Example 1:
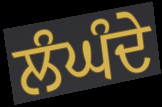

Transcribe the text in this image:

ਲੰਘੰਦੇ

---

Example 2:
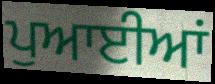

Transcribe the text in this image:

ਪੁਆਈਆਂ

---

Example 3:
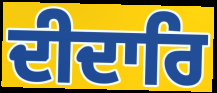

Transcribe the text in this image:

ਦੀਦਾਰਿ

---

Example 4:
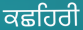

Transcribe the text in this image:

ਕਛਹਿਰੀ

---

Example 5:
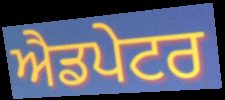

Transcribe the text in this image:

ਐਡਪੇਟਰ